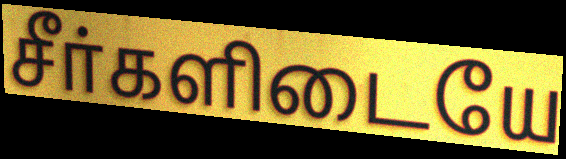
சீர்களிடையே